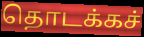
தொடக்கச்